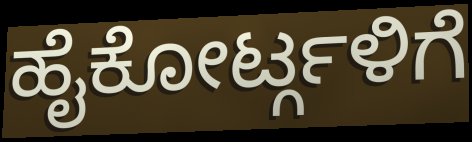
ಹೈಕೋರ್ಟ್ಗಳಿಗೆ